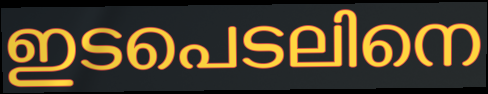
ഇടപെടലിനെ